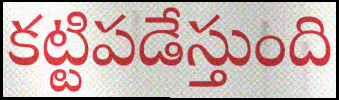
కట్టిపడేస్తుంది